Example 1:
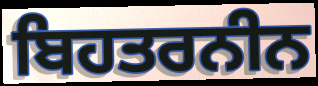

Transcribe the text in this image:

ਬਿਹਤਰਨੀਨ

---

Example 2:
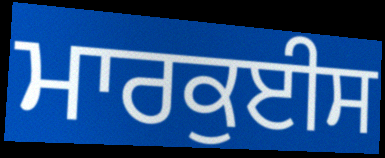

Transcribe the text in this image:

ਮਾਰਕੁਈਸ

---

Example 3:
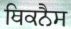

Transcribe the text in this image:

ਥਿਕਨੈਸ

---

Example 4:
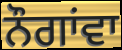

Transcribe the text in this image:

ਨੌਗਾਂਵਾ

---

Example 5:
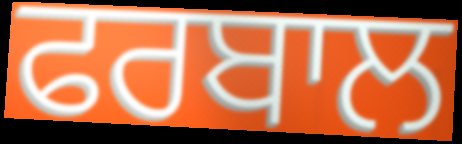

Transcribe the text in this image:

ਫਰਬਾਲ